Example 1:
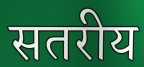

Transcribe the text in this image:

सतरीय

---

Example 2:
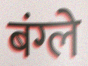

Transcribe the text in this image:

बंग्ले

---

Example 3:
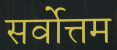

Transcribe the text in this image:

सर्वोत्तम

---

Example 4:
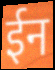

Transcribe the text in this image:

ईन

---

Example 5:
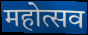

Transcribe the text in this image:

महोत्सव